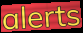
alerts